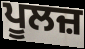
ਪੂਲਜ਼